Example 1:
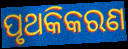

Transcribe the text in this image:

ପୃଥକିକରଣ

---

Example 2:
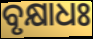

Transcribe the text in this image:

ବୃକ୍ଷାଧଃ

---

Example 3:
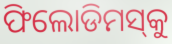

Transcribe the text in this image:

ଫିଲୋଡିମସ୍‌କୁ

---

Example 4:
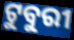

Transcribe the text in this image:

ଟୁବୁରୀ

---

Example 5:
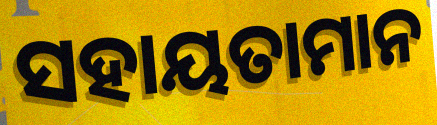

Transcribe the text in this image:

ସହାୟତାମାନ